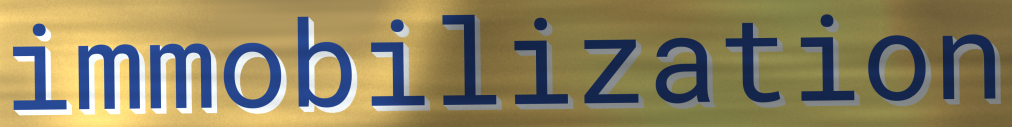
immobilization